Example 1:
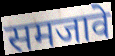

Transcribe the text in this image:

समजावे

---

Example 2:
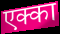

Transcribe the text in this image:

एक्का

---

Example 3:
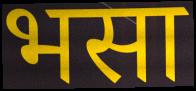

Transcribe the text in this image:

भसा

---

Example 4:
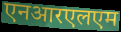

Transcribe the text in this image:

एनआरएलएम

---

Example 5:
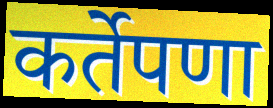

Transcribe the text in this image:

कर्तेपणा